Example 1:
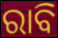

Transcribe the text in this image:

ରାବି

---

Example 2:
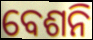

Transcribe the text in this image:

ବେଶନି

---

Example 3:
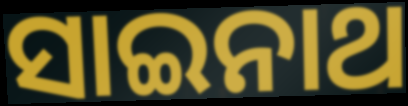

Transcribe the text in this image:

ସାଇନାଥ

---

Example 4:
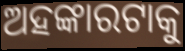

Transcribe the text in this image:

ଅହଙ୍କାରଟାକୁ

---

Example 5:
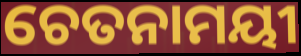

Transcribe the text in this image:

ଚେତନାମୟୀ